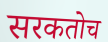
सरकतोच